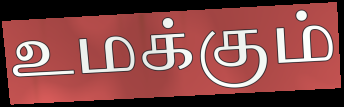
உமக்கும்